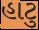
હાટુ